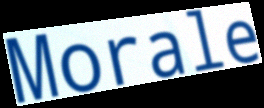
Morale